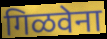
गिळवेना